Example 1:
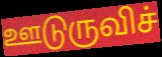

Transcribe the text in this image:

ஊடுருவிச்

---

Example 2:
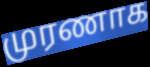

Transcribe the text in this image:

முரணாக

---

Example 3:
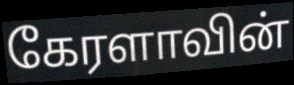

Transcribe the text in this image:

கேரளாவின்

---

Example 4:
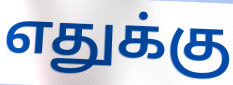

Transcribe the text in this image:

எதுக்கு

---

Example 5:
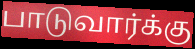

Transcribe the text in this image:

பாடுவார்க்கு